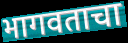
भागवताचा